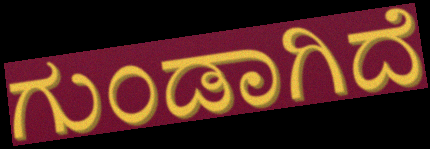
ಗುಂಡಾಗಿದೆ